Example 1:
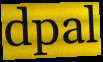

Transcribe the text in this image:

dpal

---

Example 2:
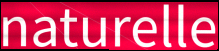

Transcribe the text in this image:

naturelle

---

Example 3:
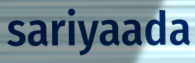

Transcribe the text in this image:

sariyaada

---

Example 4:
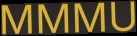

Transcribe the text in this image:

MMMU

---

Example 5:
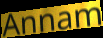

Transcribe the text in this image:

Annam